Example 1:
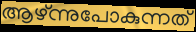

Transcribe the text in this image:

ആഴ്ന്നുപോകുന്നത്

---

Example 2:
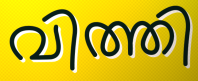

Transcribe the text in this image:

വിത്തി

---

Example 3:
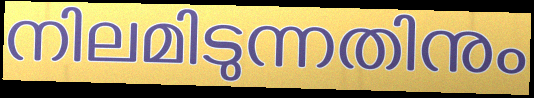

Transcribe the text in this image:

നിലമിടുന്നതിനും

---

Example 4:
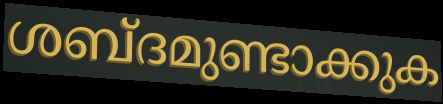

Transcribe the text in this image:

ശബ്ദമുണ്ടാക്കുക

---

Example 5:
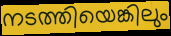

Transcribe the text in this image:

നടത്തിയെങ്കിലും